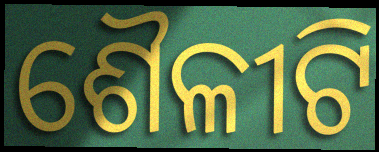
ଶୈଳୀଟି